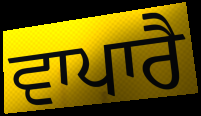
ਵਾਪਾਰੈ